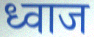
ध्वाज